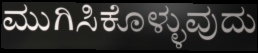
ಮುಗಿಸಿಕೊಳ್ಳುವುದು